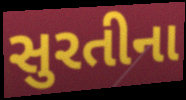
સુરતીના